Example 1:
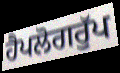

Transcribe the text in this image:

ਹੈਪਲੋਗਰੁੱਪ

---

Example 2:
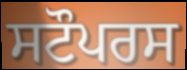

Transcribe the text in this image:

ਸਟੌਪਰਸ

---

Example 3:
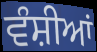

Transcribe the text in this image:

ਵੰਸ਼ੀਆਂ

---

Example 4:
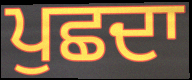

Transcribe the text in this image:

ਪੁਛਦਾ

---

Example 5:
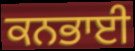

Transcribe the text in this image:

ਕਨਭਾਈ